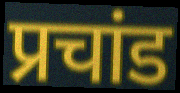
प्रचांड